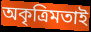
অকৃত্রিমতাই